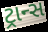
ટ્રાન્સ